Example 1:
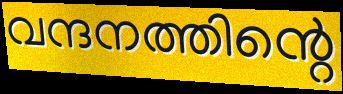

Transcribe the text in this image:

വന്ദനത്തിന്റെ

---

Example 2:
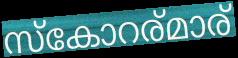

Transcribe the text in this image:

സ്കോറര്മാര്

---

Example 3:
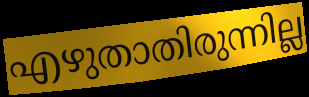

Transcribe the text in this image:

എഴുതാതിരുന്നില്ല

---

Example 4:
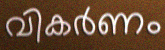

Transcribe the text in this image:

വികർണം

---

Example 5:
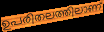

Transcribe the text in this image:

ഉപരിതലത്തിലാണ്